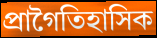
প্রাগৈতিহাসিক